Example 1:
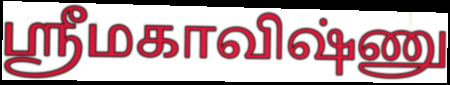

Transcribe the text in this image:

ஸ்ரீமகாவிஷ்ணு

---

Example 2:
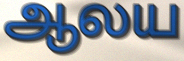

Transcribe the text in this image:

ஆலய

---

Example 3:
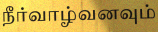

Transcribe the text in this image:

நீர்வாழ்வனவும்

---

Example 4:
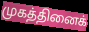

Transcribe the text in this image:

முகத்தினைக்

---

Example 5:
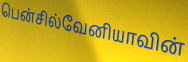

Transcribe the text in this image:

பென்சில்வேனியாவின்